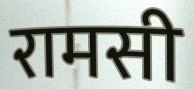
रामसी